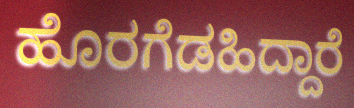
ಹೊರಗೆಡಹಿದ್ದಾರೆ